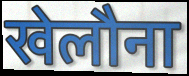
खेलौना